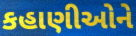
કહાણીઓને